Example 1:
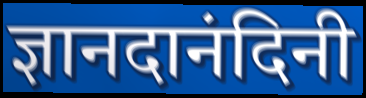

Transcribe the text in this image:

ज्ञानदानंदिनी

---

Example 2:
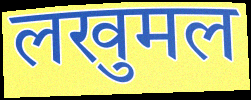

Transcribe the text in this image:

लखुमल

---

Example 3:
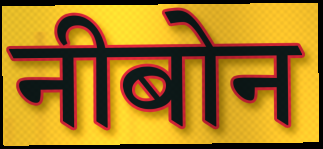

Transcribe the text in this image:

नीबोन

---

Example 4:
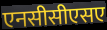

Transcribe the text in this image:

एनसीसीएसए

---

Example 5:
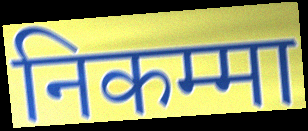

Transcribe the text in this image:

निकम्मा